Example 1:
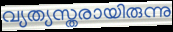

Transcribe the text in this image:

വ്യത്യസ്തരായിരുന്നു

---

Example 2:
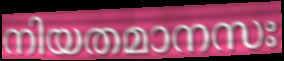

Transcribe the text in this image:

നിയതമാനസഃ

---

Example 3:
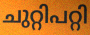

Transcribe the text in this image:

ചുറ്റിപറ്റി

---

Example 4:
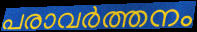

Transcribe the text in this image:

പരാവർത്തനം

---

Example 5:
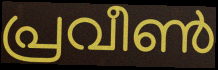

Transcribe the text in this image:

പ്രവീൺ